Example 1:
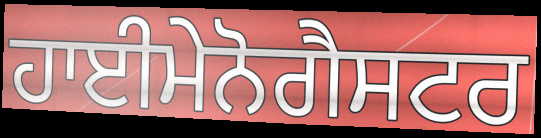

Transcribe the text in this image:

ਹਾਈਮੇਨੋਗੈਸਟਰ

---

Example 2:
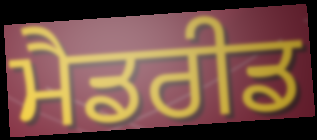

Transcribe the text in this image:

ਮੈਡਰੀਡ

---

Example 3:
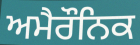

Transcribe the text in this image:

ਅਮੈਰੌਨਿਕ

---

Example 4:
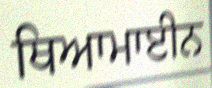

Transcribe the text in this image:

ਥਿਆਮਾਈਨ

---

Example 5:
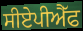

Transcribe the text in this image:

ਸੀਏਪੀਐੱਫ